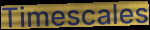
Timescales